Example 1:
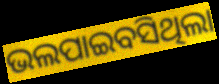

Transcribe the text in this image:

ଭଲପାଇବସିଥିଲା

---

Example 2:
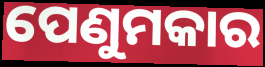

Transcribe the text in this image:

ପେଣୁମକାର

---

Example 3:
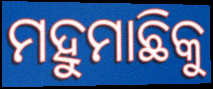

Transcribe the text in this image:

ମହୁମାଛିକୁ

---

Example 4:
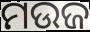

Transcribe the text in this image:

ମଉଜ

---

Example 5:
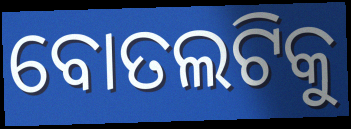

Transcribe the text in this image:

ବୋତଲଟିକୁ